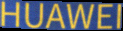
HUAWEI